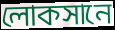
লোকসানে